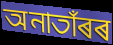
অনাতাঁৰৰ